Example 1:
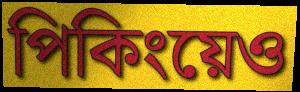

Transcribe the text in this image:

পিকিংয়েও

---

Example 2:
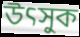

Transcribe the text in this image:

উৎসুক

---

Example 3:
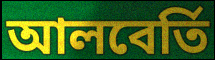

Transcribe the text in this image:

আলবের্তি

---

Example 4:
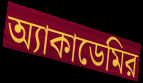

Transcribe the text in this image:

অ্যাকাডেমির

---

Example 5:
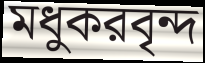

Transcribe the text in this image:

মধুকরবৃন্দ